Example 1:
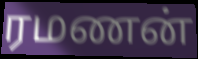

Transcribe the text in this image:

ரமணன்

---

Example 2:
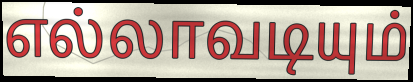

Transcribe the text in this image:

எல்லாவடியும்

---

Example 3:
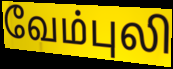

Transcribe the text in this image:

வேம்புலி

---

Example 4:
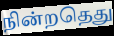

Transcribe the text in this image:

நின்றதெது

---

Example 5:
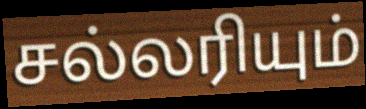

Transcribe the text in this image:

சல்லரியும்